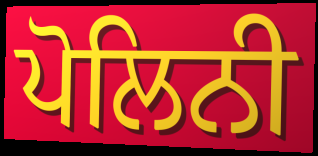
ਪੋਲਿਨੀ